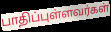
பாதிப்புள்ளவர்கள்